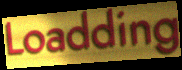
Loadding